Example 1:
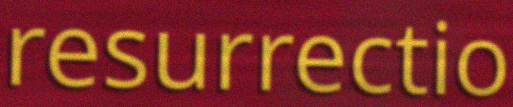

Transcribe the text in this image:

resurrectio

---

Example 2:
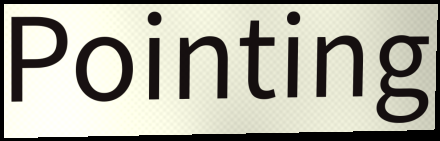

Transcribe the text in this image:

Pointing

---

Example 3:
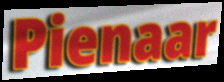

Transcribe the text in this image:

Pienaar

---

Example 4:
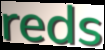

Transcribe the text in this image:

reds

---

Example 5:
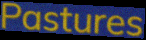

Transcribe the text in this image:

Pastures